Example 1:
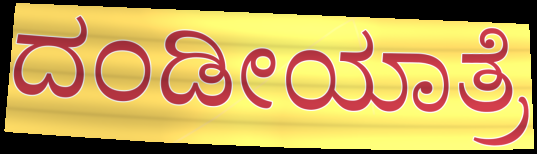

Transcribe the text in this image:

ದಂಡೀಯಾತ್ರೆ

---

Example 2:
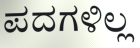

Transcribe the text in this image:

ಪದಗಳಿಲ್ಲ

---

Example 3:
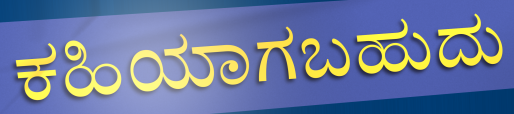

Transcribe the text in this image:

ಕಹಿಯಾಗಬಹುದು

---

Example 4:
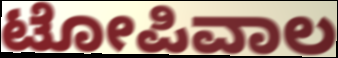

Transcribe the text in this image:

ಟೋಪಿವಾಲ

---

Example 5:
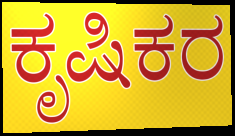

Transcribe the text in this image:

ಕೃಷಿಕರ